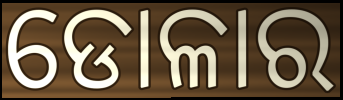
ଡୋଳାର